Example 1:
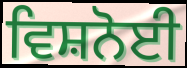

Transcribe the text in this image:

ਵਿਸ਼ਨੋਈ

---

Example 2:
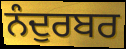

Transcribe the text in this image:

ਨੰਦੁਰਬਰ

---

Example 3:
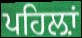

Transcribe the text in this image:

ਪਹਿਲ਼ਾਂ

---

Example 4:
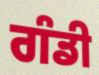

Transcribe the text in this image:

ਗੰਡੀ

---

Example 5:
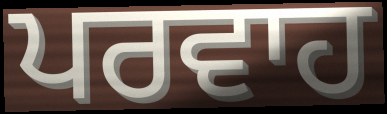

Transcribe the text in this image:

ਪਰਵਾਹ